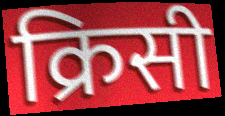
क्रिसी